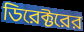
ডিরেক্টরের